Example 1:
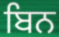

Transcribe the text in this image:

ਬਿਨ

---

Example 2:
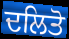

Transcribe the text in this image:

ਦਲਿਤੋ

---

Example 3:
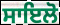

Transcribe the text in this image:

ਸਾਇਲੋ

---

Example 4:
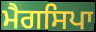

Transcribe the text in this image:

ਮੈਗਸਿਪਾ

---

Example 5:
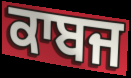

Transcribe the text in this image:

ਕਾਬਜ